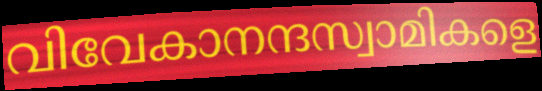
വിവേകാനന്ദസ്വാമികളെ